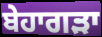
ਬੇਹਾਗੜਾ